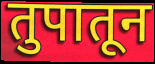
तुपातून